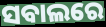
ସବାଲରେ